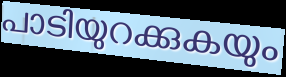
പാടിയുറക്കുകയും